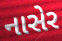
નાસેર